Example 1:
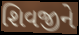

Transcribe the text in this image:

શિવજીને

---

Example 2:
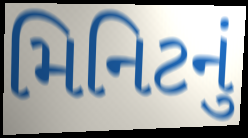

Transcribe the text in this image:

મિનિટનું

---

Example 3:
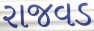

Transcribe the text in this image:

રાજવડ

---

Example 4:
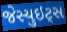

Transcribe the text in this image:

જેસ્યુઇટ્સ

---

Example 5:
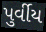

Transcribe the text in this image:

પુર્વીય